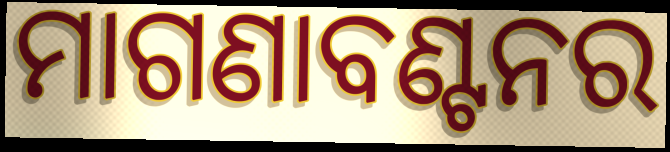
ମାଗଣାବଣ୍ଟନର